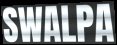
SWALPA